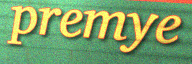
premye